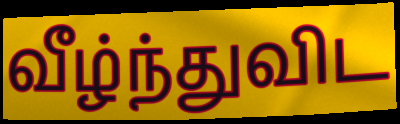
வீழ்ந்துவிட